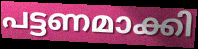
പട്ടണമാക്കി